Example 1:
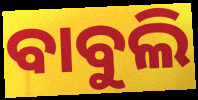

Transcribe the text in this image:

ବାବୁଲି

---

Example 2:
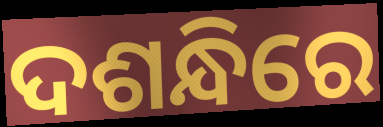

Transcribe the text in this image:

ଦଶନ୍ଧିରେ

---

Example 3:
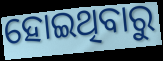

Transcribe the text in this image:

ହୋଇଥିବାରୁ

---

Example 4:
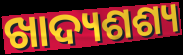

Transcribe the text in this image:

ଖାଦ୍ୟଶଶ୍ୟ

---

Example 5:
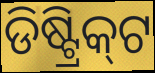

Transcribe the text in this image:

ଡିଷ୍ଟ୍ରିକ୍‌ଟ